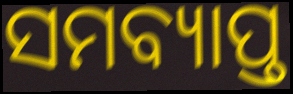
ସମବ୍ୟାପ୍ତ